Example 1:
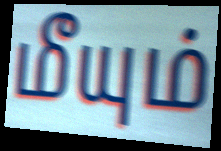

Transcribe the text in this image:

மீயும்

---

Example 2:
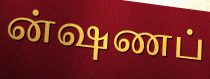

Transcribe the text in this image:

ன்ஷணப்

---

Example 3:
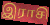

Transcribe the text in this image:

இராசி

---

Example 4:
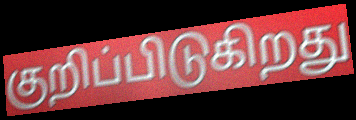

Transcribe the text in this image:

குறிப்பிடுகிறது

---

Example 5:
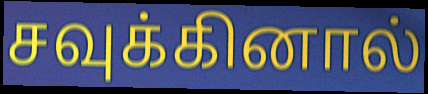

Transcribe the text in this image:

சவுக்கினால்